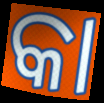
କା